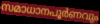
സമാധാനപൂർണവും